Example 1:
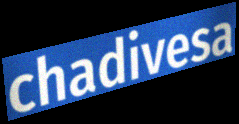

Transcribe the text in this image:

chadivesa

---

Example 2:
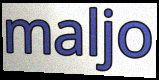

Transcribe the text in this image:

maljo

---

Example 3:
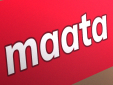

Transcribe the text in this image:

maata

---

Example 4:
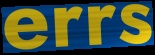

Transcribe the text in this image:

errs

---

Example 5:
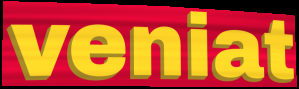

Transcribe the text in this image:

veniat